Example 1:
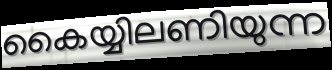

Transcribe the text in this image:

കൈയ്യിലണിയുന്ന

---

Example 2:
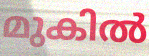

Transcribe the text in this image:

മുകിൽ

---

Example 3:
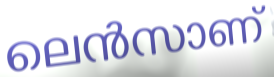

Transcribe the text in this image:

ലെൻസാണ്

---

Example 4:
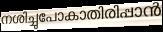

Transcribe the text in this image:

നശിച്ചുപോകാതിരിപ്പാൻ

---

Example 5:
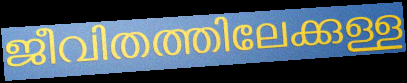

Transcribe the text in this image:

ജീവിതത്തിലേക്കുള്ള